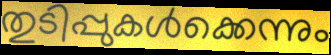
തുടിപ്പുകൾക്കെന്നും